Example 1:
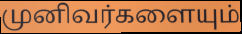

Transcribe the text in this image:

முனிவர்களையும்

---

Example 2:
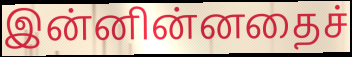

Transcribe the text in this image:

இன்னின்னதைச்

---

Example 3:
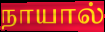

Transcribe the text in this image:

நாயால்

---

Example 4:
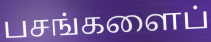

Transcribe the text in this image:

பசங்களைப்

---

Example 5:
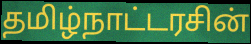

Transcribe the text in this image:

தமிழ்நாட்டரசின்